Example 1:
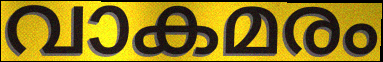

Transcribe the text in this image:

വാകമരം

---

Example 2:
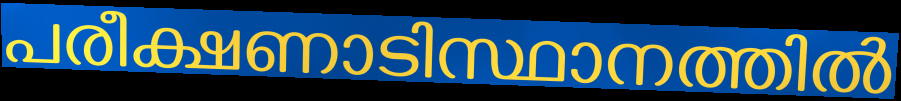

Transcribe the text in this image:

പരീക്ഷണാടിസ്ഥാനത്തിൽ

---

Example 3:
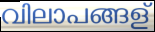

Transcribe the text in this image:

വിലാപങ്ങള്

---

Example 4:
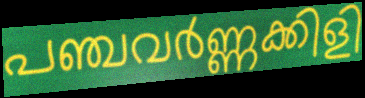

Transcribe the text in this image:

പഞ്ചവർണ്ണക്കിളി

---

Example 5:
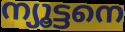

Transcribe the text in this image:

ന്യൂട്ടനെ